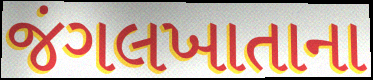
જંગલખાતાના